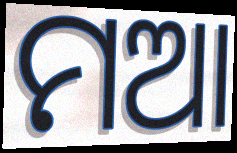
ମଆ